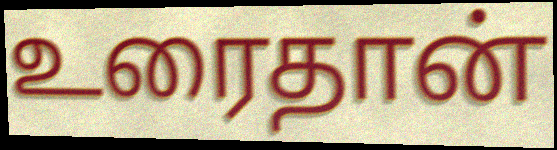
உரைதான்